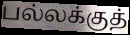
பல்லக்குத்